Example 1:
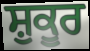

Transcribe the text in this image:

ਸ਼ੁਕੂਰ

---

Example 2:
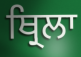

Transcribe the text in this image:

ਥ੍ਰਿਲਾ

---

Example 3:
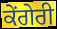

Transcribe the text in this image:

ਕੇਂਗੇਰੀ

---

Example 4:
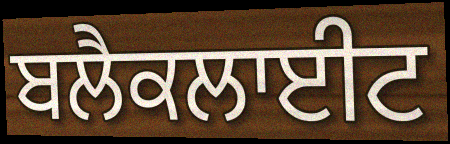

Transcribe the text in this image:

ਬਲੈਕਲਾਈਟ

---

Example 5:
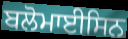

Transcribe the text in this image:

ਬਲੋਮਾਈਸਿਨ